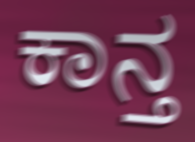
ಕಾನ್ತ